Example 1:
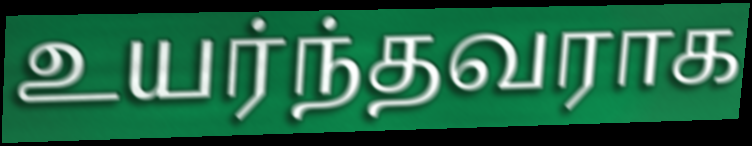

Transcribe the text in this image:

உயர்ந்தவராக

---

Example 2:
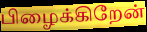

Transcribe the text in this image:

பிழைக்கிறேன்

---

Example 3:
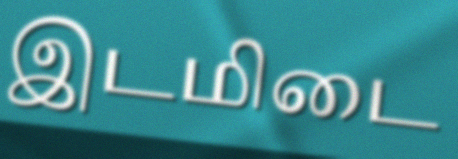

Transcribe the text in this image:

இடமிடை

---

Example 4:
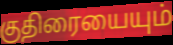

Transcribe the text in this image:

குதிரையையும்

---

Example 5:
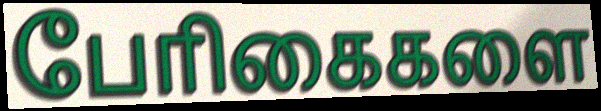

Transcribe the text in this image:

பேரிகைகளை